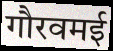
गौरवमई